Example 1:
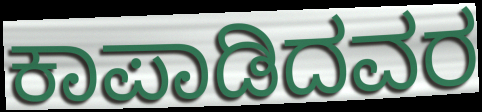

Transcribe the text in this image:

ಕಾಪಾಡಿದವರ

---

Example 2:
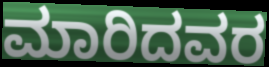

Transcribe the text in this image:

ಮಾರಿದವರ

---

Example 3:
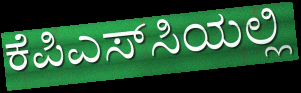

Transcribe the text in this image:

ಕೆಪಿಎಸ್‌ಸಿಯಲ್ಲಿ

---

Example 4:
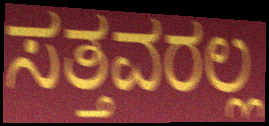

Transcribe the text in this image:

ಸತ್ತವರಲ್ಲ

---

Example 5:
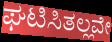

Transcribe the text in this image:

ಘಟಿಸಿತಲ್ಲವೇ